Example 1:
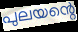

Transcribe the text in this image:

പുലയന്റെ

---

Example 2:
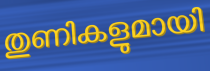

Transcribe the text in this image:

തുണികളുമായി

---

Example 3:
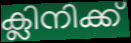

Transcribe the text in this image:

ക്ലിനിക്ക്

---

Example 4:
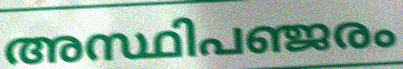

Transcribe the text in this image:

അസ്ഥിപഞ്ജരം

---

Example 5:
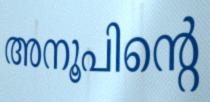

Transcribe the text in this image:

അനൂപിന്റെ